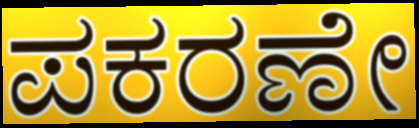
ಪಕರಣೇ